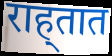
राह्तात